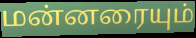
மன்னரையும்